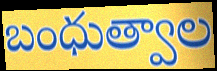
బంధుత్వాల